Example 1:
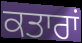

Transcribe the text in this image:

ਕਤਾਰਾਂ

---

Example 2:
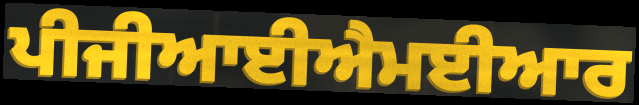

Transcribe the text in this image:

ਪੀਜੀਆਈਐਮਈਆਰ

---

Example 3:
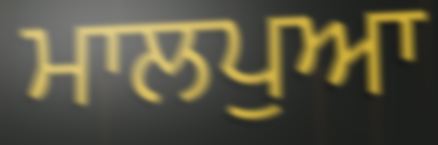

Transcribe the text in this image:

ਮਾਲਪੁਆ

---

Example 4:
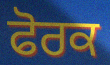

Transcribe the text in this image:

ਫੋਰਕ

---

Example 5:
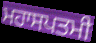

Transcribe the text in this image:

ਮਹਾਸਪਤਮੀ